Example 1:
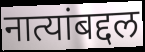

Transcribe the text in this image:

नात्यांबद्दल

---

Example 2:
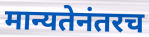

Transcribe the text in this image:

मान्यतेनंतरच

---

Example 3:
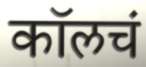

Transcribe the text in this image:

कॉलचं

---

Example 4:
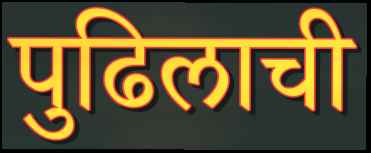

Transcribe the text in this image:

पुढिलाची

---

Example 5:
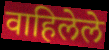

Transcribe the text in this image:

वाहिलेले